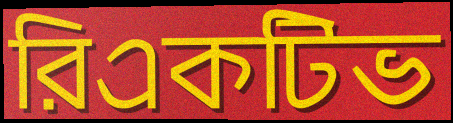
রিএকটিভ